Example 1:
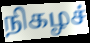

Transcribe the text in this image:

நிகழச்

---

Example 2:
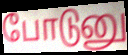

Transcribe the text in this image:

போடுனு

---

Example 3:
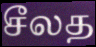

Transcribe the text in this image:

சீலத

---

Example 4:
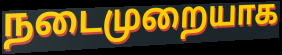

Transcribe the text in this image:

நடைமுறையாக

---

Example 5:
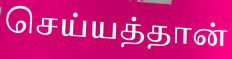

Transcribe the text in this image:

செய்யத்தான்